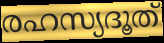
രഹസ്യദൂത്